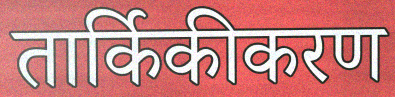
तार्किकीकरण